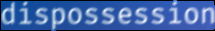
dispossession